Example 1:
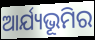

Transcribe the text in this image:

ଆର୍ଯ୍ୟଭୂମିର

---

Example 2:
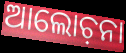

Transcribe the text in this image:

ଆଲୋଚ଼ନା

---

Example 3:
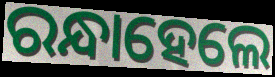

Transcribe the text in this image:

ରନ୍ଧାହେଲେ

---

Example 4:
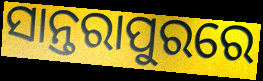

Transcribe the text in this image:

ସାନ୍ତରାପୁରରେ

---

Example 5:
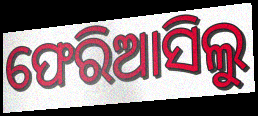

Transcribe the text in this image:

ଫେରିଆସିଲୁ